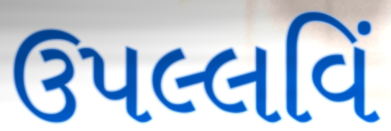
ઉપલ્લવિં